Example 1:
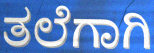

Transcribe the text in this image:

ತಲೆಗಾಗಿ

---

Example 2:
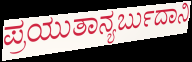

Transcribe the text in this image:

ಪ್ರಯುತಾನ್ಯರ್ಬುದಾನಿ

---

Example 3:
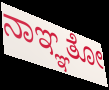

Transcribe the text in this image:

ನಾಞ್ಞತೋ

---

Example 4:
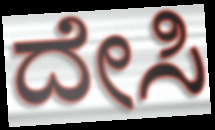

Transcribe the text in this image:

ದೇಸಿ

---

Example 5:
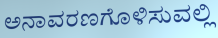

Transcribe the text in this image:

ಅನಾವರಣಗೊಳಿಸುವಲ್ಲಿ